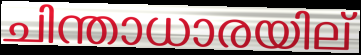
ചിന്താധാരയില്